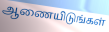
ஆணையிடுங்கள்